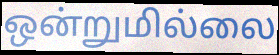
ஒன்றுமில்லை